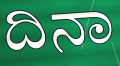
ದಿನಾ